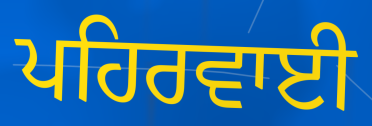
ਪਹਿਰਵਾਈ